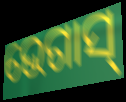
ଭେଗାସ୍